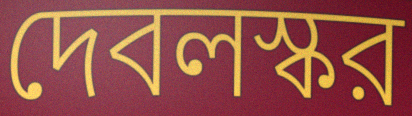
দেবলস্কর